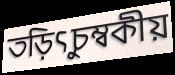
তড়িৎচুম্বকীয়